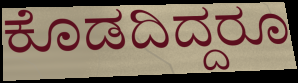
ಕೊಡದಿದ್ದರೂ